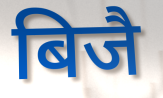
बिजै